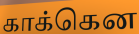
காக்கென